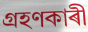
গ্ৰহণকাৰী